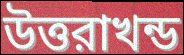
উত্তরাখন্ড